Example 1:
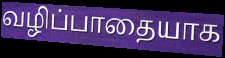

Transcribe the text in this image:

வழிப்பாதையாக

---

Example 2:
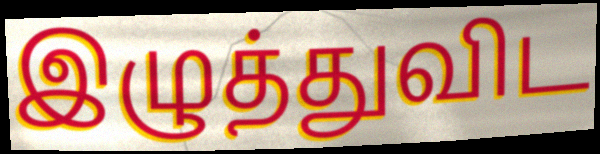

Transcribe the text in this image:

இழுத்துவிட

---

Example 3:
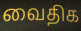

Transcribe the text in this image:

வைதிக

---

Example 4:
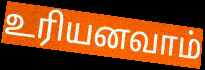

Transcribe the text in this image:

உரியனவாம்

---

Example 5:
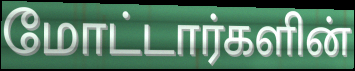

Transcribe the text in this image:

மோட்டார்களின்